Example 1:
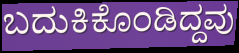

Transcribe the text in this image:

ಬದುಕಿಕೊಂಡಿದ್ದವು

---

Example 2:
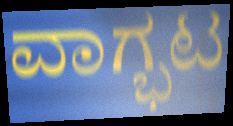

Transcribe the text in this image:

ವಾಗ್ಭಟ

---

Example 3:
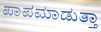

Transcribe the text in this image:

ಪಾಪಮಾಡುತ್ತಾ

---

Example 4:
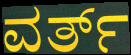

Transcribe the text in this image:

ವರ್ತ್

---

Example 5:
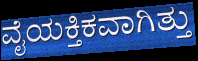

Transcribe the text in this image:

ವೈಯಕ್ತಿಕವಾಗಿತ್ತು